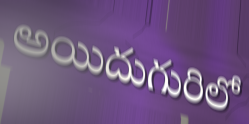
అయిదుగురిలో